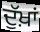
ਦੁੱਖ਼ਾਂ